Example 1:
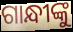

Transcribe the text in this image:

ଗାନ୍ଧୀଙ୍କୁ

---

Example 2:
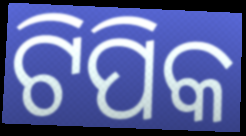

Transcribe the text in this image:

ଟିପିକ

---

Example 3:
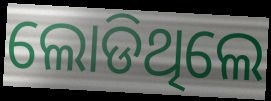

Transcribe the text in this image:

ଲୋଡିଥିଲେ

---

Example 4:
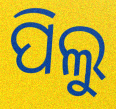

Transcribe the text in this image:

ପିଲୁ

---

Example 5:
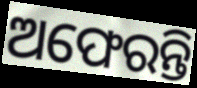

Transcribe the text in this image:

ଅଫେରନ୍ତି